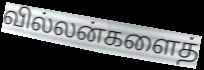
வில்லன்களைத்